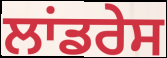
ਲਾਂਡਰੇਸ